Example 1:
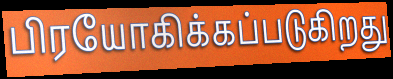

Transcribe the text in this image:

பிரயோகிக்கப்படுகிறது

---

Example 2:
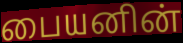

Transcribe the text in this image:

பையனின்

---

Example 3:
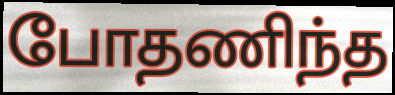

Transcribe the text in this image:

போதணிந்த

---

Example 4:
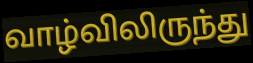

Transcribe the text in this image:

வாழ்விலிருந்து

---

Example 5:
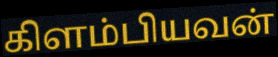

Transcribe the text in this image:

கிளம்பியவன்